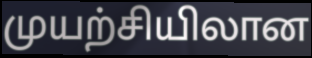
முயற்சியிலான